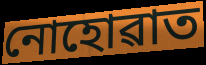
নোহোৱাত